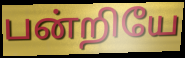
பன்றியே